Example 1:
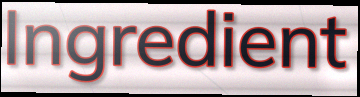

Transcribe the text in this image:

Ingredient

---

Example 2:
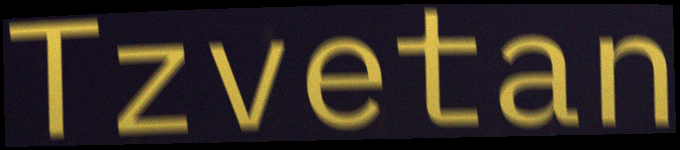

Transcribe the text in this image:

Tzvetan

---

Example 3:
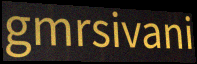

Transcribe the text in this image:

gmrsivani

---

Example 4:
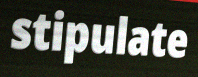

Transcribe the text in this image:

stipulate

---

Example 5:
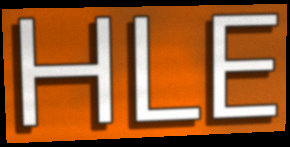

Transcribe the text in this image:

HLE